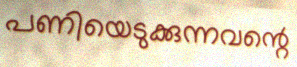
പണിയെടുക്കുന്നവന്റെ